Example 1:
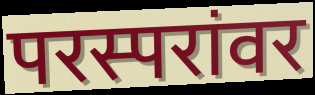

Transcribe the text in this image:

परस्परांवर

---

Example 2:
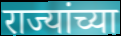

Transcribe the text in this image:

राज्यांच्या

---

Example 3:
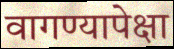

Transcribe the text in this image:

वागण्यापेक्षा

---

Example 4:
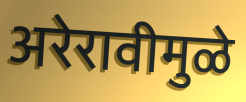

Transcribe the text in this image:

अरेरावीमुळे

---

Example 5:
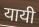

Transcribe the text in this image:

यायी